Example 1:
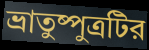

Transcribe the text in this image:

ভ্রাতুষ্পুত্রটির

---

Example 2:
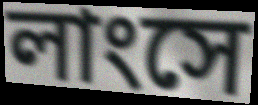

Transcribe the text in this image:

লাংসে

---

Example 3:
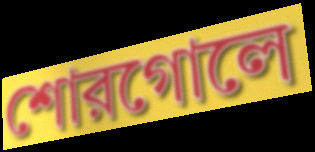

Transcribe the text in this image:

শোরগোলে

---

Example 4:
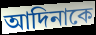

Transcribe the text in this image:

আদিনাকে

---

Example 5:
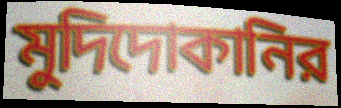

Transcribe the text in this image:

মুদিদোকানির